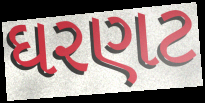
ઘરણટ